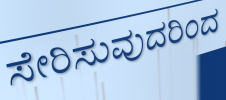
ಸೇರಿಸುವುದರಿಂದ